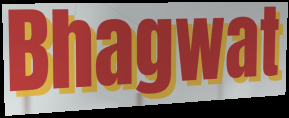
Bhagwat